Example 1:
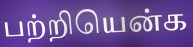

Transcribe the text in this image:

பற்றியென்க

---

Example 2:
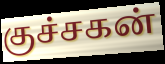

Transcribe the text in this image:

குச்சகன்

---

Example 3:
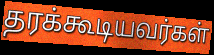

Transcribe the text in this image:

தரக்கூடியவர்கள்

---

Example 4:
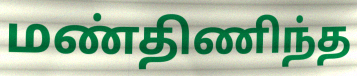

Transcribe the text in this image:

மண்திணிந்த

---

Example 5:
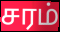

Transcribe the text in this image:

சரம்